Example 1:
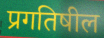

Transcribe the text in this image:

प्रगतिषील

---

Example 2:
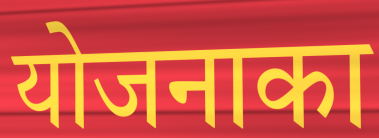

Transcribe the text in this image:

योजनाका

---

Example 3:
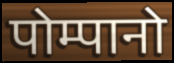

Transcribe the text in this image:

पोम्पानो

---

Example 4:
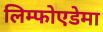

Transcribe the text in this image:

लिम्फोएडेमा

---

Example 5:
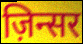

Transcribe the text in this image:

ज़िन्सर